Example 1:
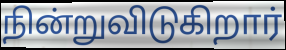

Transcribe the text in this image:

நின்றுவிடுகிறார்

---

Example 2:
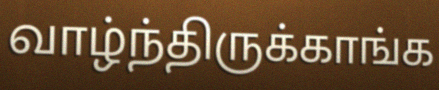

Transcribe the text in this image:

வாழ்ந்திருக்காங்க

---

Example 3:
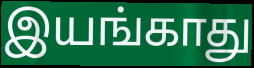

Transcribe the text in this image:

இயங்காது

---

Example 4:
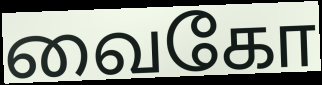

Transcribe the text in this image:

வைகோ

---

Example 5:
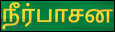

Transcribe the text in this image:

நீர்பாசன